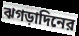
ঝগড়াদিনের